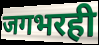
जगभरही